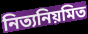
নিত্যনিয়মিত